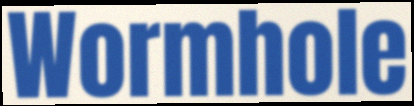
Wormhole